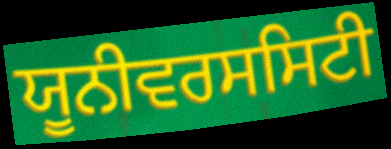
ਯੂਨੀਵਰਸਸਿਟੀ